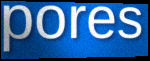
pores